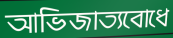
আভিজাত্যবোধে